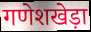
गणेशखेड़ा